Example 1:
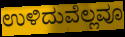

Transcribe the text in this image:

ಉಳಿದುವೆಲ್ಲವೂ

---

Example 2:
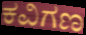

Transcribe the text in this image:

ಕವಿಗಣ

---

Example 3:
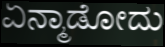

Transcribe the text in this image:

ಏನ್ಮಾಡೋದು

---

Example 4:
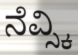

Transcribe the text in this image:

ನೆವ್ಸ್ಕಿ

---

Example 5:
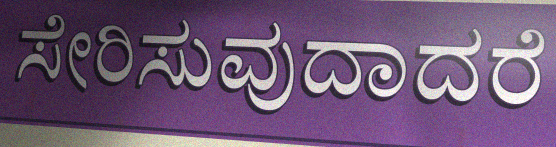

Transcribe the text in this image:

ಸೇರಿಸುವುದಾದರೆ